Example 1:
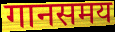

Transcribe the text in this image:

गानसमय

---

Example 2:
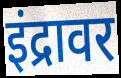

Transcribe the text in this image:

इंद्रावर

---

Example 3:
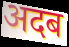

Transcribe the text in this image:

अदब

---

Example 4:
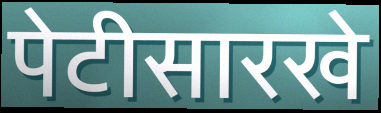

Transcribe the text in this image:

पेटीसारखे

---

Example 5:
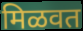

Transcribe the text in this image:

मिळवत